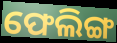
ଫେଲିଙ୍ଗ